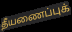
தீயணைப்புக்